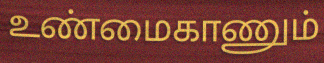
உண்மைகாணும்